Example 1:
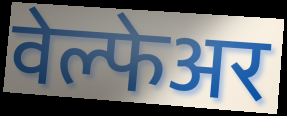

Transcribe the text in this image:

वेल्फेअर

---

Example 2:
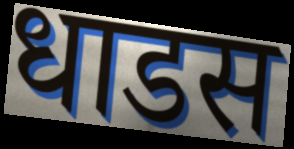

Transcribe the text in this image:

धाडस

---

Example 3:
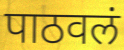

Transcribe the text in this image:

पाठवलं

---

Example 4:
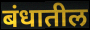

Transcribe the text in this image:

बंधातील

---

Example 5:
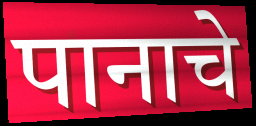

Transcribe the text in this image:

पानाचे